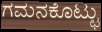
ಗಮನಕೊಟ್ಟು